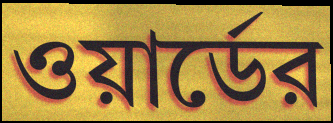
ওয়ার্ডের